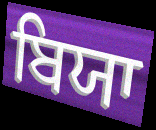
ਬਿਯਾ